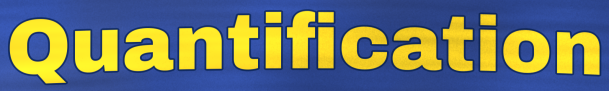
Quantification